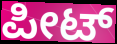
ಪೀಟ್